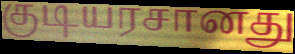
குடியரசானது